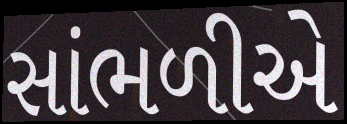
સાંભળીએ